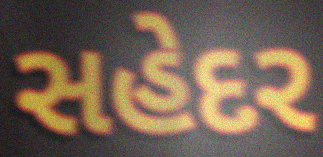
સહેદર